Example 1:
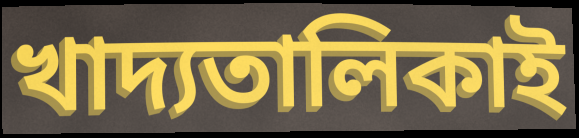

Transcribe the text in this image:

খাদ্যতালিকাই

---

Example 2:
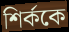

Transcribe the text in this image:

শির্ককে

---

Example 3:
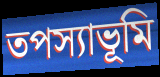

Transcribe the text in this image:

তপস্যাভূমি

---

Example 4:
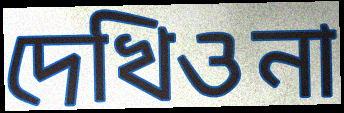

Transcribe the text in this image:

দেখিওনা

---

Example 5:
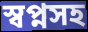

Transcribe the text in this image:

স্বপ্নসহ